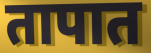
तापात